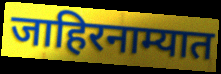
जाहिरनाम्यात